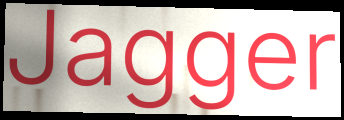
Jagger